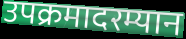
उपक्रमादरम्यान